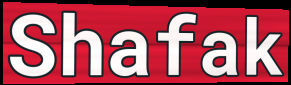
Shafak